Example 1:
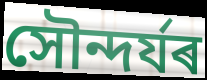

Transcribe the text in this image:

সৌন্দৰ্যৰ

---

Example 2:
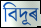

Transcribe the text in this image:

বিদূৰ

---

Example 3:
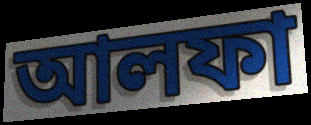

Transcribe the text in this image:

আলফা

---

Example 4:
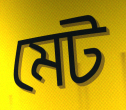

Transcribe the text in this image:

মেট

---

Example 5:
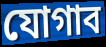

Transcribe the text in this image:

যোগাব